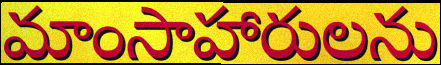
మాంసాహారులను